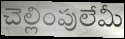
చెల్లింపులేమీ